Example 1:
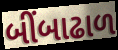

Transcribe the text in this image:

બીંબાઢાળ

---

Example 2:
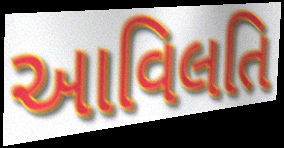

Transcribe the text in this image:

આવિલતિ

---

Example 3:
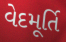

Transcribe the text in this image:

વેદમૂર્તિ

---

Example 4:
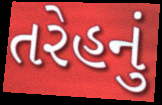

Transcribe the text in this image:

તરેહનું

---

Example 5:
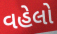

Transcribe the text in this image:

વહેલો